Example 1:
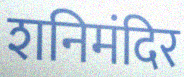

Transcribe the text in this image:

शनिमंदिर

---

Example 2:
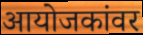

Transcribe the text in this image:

आयोजकांवर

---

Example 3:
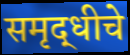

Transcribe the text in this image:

समृद्धीचे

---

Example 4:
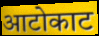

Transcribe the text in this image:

आटोकाट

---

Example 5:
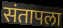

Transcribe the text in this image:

संतापला